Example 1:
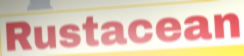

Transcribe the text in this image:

Rustacean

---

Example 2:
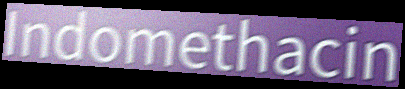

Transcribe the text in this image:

Indomethacin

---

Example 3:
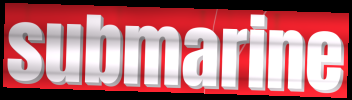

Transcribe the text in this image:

submarine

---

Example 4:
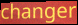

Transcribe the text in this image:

changer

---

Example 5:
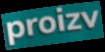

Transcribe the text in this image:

proizv